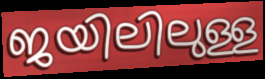
ജയിലിലുള്ള